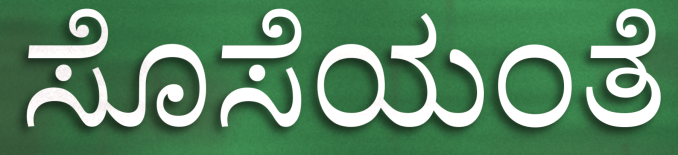
ಸೊಸೆಯಂತೆ